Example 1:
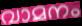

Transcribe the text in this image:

വാമനം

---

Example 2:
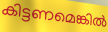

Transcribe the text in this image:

കിട്ടണമെങ്കിൽ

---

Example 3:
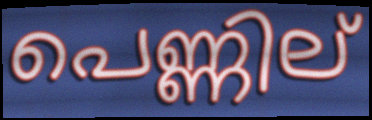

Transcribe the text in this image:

പെണ്ണില്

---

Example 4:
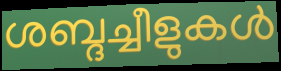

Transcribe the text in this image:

ശബ്ദച്ചീളുകൾ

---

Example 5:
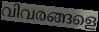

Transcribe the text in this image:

വിവരങ്ങളെ